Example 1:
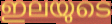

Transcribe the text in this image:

ഇലയുടെ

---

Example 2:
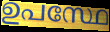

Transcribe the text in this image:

ഉപസ്ഥേ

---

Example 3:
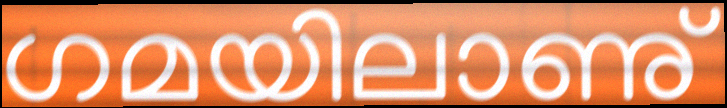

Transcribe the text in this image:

ഗമയിലാണു്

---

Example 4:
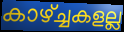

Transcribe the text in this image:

കാഴ്ച്ചകളല്ല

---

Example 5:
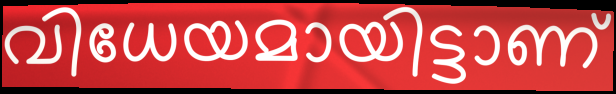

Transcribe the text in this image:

വിധേയമായിട്ടാണ്